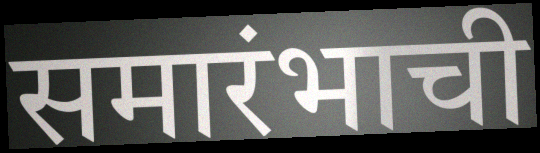
समारंभाची